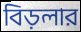
বিড়লার